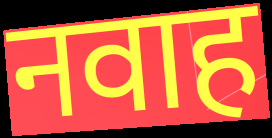
नवाह